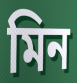
মিন